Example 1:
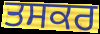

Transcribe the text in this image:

ਤਸਕਰ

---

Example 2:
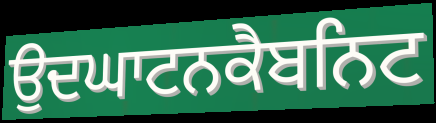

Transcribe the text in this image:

ਉਦਘਾਟਨਕੈਬਨਿਟ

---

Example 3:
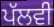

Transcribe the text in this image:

ਪੱਲਵੀ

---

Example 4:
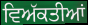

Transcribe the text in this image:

ਵਿਅੱਕਤੀਆਂ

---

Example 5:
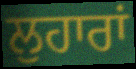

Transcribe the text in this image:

ਲੁਹਾਰਾਂ